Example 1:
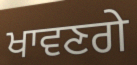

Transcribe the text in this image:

ਖਾਵਣਗੇ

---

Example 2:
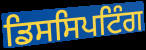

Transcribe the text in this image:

ਡਿਸਸਿਪਟਿੰਗ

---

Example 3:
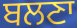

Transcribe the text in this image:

ਬਲਣਾ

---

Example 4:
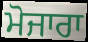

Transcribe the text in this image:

ਮੋਜਾਰਾ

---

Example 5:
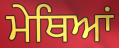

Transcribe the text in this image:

ਮੇਥਿਆਂ